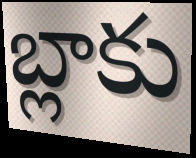
బ్లాకు